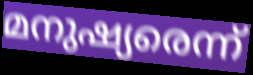
മനുഷ്യരെന്ന്